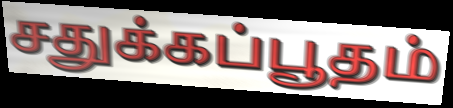
சதுக்கப்பூதம்